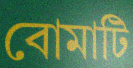
বোমাটি